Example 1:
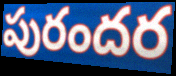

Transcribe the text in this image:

పురందర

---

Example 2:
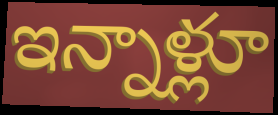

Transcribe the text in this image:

ఇన్నాళ్లూ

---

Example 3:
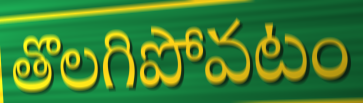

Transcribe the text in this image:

తొలగిపోవటం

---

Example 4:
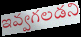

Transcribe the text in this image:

ఇవ్వగలడని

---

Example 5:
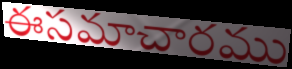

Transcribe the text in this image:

ఈసమాచారము